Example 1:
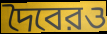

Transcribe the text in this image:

দৈবেরও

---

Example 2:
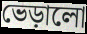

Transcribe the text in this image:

ভেড়ালো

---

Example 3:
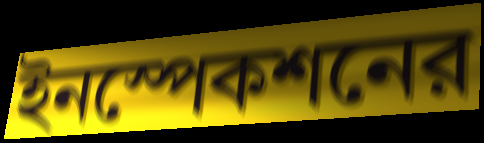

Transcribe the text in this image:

ইনস্পেকশনের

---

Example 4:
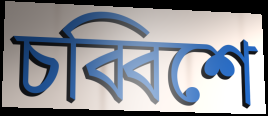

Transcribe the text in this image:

চব্বিশে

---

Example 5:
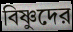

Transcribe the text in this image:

বিষ্ণুদের